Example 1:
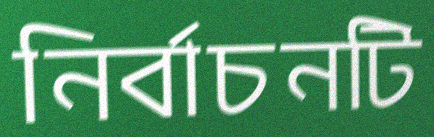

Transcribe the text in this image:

নির্বাচনটি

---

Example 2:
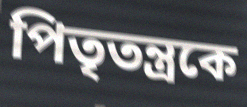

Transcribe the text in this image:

পিতৃতন্ত্রকে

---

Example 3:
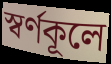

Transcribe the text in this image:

স্বর্ণকূলে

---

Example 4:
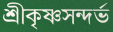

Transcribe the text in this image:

শ্রীকৃষ্ণসন্দর্ভ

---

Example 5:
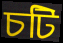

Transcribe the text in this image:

চটি